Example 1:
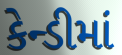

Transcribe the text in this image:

કેન્ડીમાં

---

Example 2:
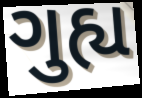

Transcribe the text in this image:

ગુહ્ય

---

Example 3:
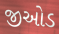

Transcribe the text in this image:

જીઓડ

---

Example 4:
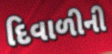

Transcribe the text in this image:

દિવાળીની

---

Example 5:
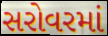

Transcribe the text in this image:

સરોવરમાં